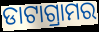
ଡାଟାଗ୍ରାମର